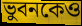
ভুবনকেও